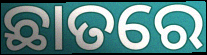
ଛାତରେ